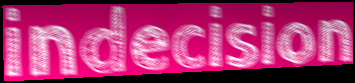
indecision